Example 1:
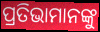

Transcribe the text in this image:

ପ୍ରତିଭାମାନଙ୍କୁ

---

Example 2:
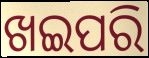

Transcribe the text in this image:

ଖଇପରି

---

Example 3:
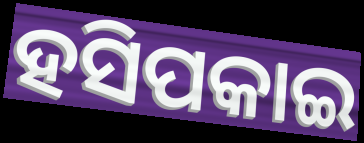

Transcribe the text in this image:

ହସିପକାଇ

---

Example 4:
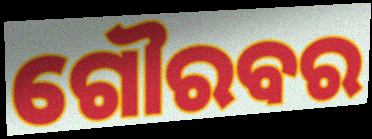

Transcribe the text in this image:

ଗୌରବର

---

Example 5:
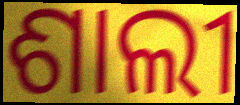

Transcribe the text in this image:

ଶାଲୀ